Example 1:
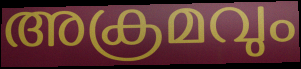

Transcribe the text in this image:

അക്രമവും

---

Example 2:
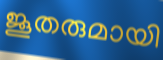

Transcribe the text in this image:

ജൂതരുമായി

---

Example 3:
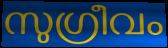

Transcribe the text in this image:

സുഗ്രീവം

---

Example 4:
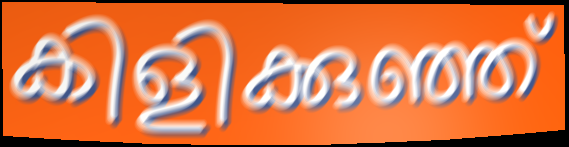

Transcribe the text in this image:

കിളിക്കുഞ്ഞ്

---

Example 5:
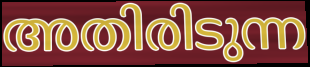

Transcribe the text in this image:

അതിരിടുന്ന